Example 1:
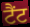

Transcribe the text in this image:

ਟੈਂਟ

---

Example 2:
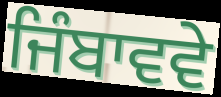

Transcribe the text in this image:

ਜਿੰਬਾਵਵੇ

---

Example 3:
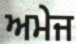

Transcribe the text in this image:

ਅਮੇਜ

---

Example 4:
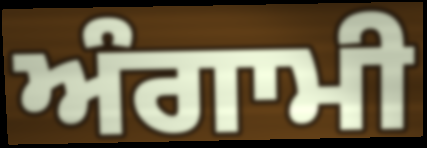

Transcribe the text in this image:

ਅੰਗਾਮੀ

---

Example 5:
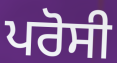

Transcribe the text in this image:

ਪਰੋਸੀ